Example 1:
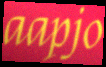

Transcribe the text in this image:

aapjo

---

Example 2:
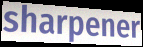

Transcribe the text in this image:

sharpener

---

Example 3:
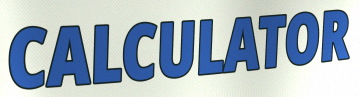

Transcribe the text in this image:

CALCULATOR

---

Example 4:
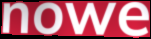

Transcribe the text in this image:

nowe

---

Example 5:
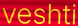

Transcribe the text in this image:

veshti